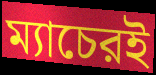
ম্যাচেরই